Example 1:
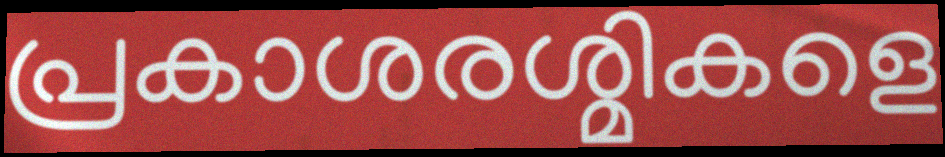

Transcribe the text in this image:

പ്രകാശരശ്മികളെ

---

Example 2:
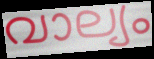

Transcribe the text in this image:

വാല്യം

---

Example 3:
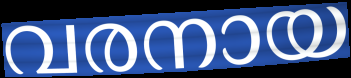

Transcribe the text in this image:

വരനായ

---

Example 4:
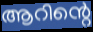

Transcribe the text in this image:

ആറിന്റെ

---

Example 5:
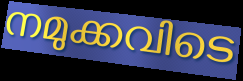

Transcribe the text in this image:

നമുക്കവിടെ